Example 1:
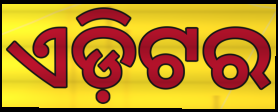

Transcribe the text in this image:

ଏଡ଼ିଟର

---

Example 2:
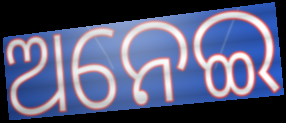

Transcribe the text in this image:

ଅନେଇ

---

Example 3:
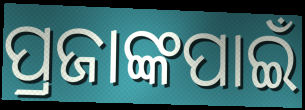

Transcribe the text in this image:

ପ୍ରଜାଙ୍କପାଇଁ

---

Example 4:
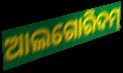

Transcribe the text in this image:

ଆଲଗୋରିଦମ୍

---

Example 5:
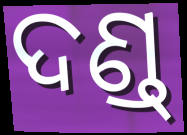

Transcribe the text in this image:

ଦଣ୍ଡ୍